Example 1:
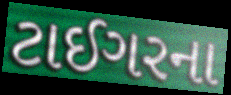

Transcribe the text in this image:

ટાઈગરના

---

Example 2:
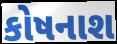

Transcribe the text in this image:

કોષનાશ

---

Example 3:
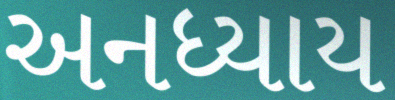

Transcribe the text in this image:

અનધ્યાય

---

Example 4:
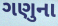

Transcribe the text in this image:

ગણુના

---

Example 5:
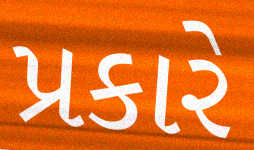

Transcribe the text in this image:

પ્રકારે